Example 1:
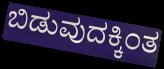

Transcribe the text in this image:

ಬಿಡುವುದಕ್ಕಿಂತ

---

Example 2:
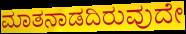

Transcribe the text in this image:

ಮಾತನಾಡದಿರುವುದೇ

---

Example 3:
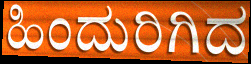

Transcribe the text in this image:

ಹಿಂದುರಿಗಿದ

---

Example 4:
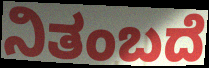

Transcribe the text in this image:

ನಿತಂಬದೆ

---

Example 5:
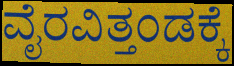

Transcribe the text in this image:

ವೈರವಿತ್ತಂಡಕ್ಕೆ